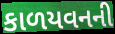
કાળયવનની